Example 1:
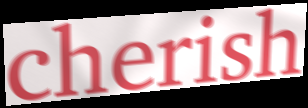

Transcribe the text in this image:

cherish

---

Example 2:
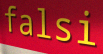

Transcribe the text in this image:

falsi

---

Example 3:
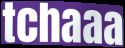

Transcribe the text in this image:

tchaaa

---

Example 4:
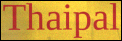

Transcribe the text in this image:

Thaipal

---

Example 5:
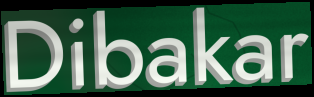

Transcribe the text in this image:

Dibakar